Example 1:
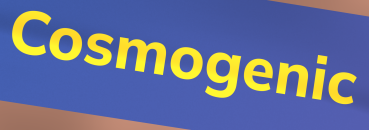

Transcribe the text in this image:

Cosmogenic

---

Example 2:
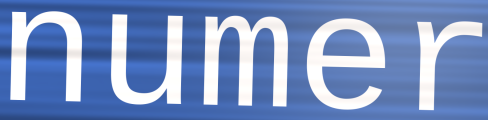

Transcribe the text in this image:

numer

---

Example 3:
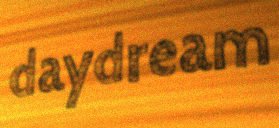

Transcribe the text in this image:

daydream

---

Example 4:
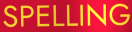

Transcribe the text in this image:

SPELLING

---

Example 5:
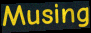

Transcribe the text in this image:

Musing